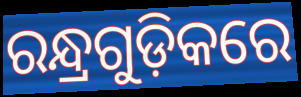
ରନ୍ଧ୍ରଗୁଡ଼ିକରେ